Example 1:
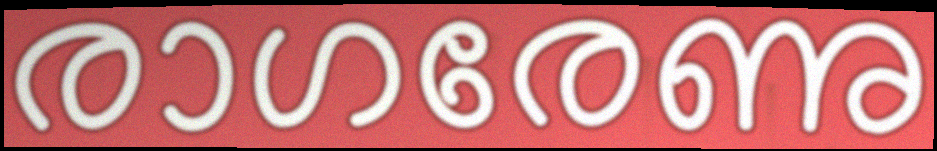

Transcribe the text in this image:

രാഗരേണു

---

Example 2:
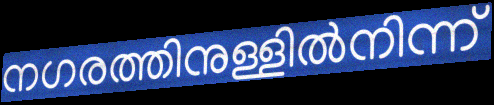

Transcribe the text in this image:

നഗരത്തിനുള്ളിൽനിന്ന്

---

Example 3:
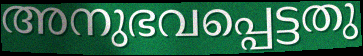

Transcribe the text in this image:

അനുഭവപ്പെട്ടതു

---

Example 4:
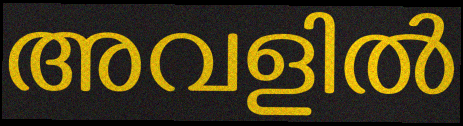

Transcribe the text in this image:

അവളിൽ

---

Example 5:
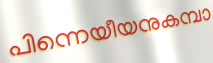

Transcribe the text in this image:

പിന്നെയീയനുകമ്പാ